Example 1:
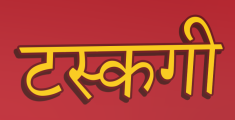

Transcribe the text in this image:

टस्कगी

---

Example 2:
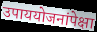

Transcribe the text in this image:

उपाययोजनांपेक्षा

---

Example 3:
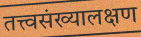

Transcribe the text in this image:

तत्त्वसंख्यालक्षण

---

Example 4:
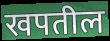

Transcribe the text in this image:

खपतील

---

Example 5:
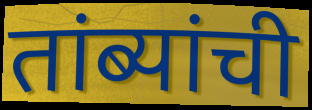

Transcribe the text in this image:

तांब्यांची